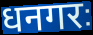
धनगरः